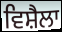
ਵਿਸ਼ੈਲਾ